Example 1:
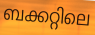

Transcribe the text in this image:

ബക്കറ്റിലെ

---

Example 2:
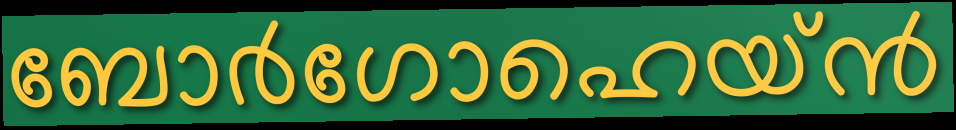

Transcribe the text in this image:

ബോർഗോഹെയ്ൻ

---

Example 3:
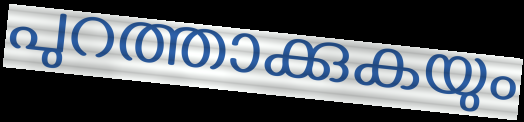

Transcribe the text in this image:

പുറത്താക്കുകയും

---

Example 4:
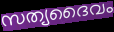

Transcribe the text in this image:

സത്യദൈവം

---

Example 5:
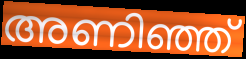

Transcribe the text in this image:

അണിഞ്ഞ്